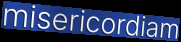
misericordiam